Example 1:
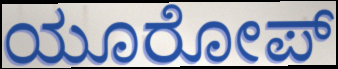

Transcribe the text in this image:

ಯೂರೋಪ್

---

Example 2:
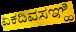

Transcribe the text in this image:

ಏಕದಿವಸಞ್ಹಿ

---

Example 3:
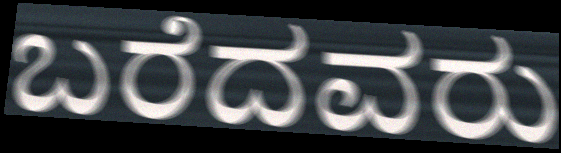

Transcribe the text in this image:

ಬರೆದವರು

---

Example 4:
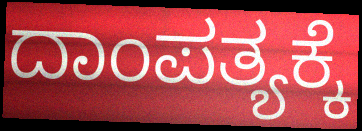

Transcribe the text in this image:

ದಾಂಪತ್ಯಕ್ಕೆ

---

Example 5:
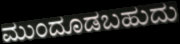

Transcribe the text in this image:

ಮುಂದೂಡಬಹುದು